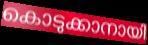
കൊടുക്കാനായി